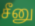
சீனு